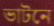
ভাটনে